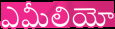
ఎమీలియో